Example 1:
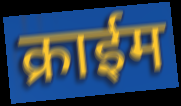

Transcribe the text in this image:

क्राईम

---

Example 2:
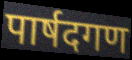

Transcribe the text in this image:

पार्षदगण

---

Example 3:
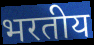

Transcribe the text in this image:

भरतीय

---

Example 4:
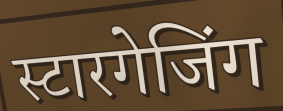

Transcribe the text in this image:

स्टारगेजिंग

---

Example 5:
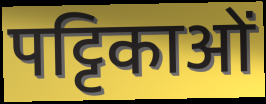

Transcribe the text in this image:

पट्टिकाओं